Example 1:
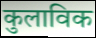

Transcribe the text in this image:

कुलाविक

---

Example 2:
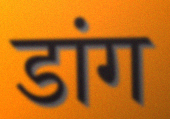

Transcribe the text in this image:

डांग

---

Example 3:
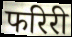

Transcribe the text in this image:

फरिरी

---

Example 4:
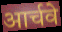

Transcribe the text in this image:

आर्चवे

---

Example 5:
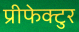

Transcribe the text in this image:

प्रीफेक्टुर